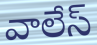
వాలేస్